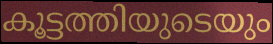
കൂട്ടത്തിയുടെയും